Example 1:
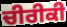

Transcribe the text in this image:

ਚੀਰੀਕੀ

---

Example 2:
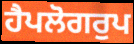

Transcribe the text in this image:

ਹੈਪਲੋਗਰੁਪ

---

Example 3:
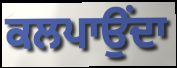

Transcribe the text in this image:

ਕਲਪਾਉਂਦਾ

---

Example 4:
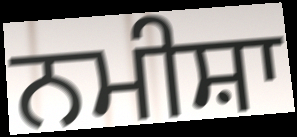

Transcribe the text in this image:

ਨਮੀਸ਼ਾ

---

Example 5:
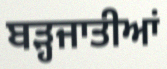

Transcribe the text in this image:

ਬੜ੍ਹਜਾਤੀਆਂ